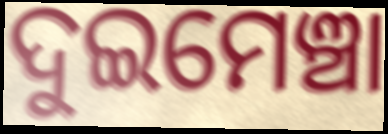
ଦୁଇମେଞ୍ଚା